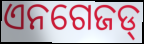
ଏନଗେଜଡ୍